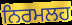
ਨਿਰਮਲਹ